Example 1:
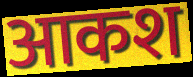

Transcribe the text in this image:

आकश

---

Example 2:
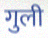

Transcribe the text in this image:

गुली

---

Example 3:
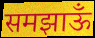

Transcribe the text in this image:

समझाऊँ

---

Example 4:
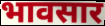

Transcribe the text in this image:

भावसार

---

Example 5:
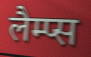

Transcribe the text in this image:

लैम्प्स